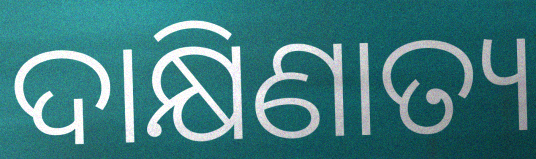
ଦାକ୍ଷିଣାତ୍ୟ